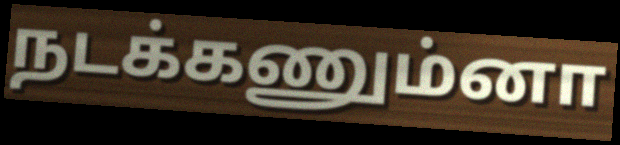
நடக்கணும்னா